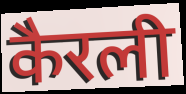
कैरली